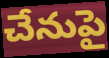
చేనుపై